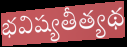
భవిష్యతీత్యథ